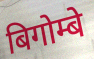
बिगोम्बे